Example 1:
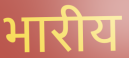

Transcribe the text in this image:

भारीय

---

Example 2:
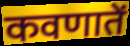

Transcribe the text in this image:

कवणातें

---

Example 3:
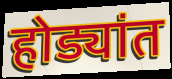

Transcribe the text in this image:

होड्यांत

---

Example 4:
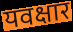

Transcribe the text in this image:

यवक्षार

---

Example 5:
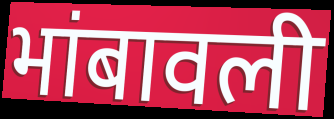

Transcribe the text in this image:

भांबावली